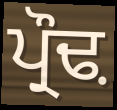
ਪ੍ਰੌਢ਼